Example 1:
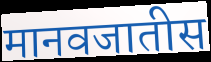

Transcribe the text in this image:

मानवजातीस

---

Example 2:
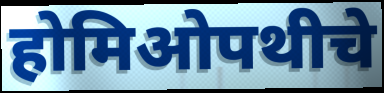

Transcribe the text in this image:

होमिओपथीचे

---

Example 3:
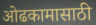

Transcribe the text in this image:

ओढकामासाठी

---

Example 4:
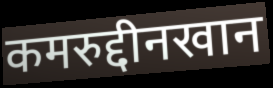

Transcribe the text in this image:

कमरुद्दीनखान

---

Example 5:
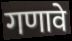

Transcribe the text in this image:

गणावे